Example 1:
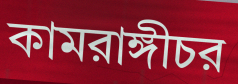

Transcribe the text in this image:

কামরাঙ্গীচর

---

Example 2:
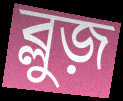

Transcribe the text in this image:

ব্লুজ়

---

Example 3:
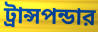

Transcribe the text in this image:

ট্রান্সপন্ডার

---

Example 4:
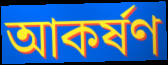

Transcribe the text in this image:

আকর্ষণ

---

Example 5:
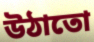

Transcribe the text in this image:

উঠাতো